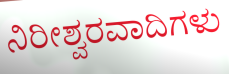
ನಿರೀಶ್ವರವಾದಿಗಳು